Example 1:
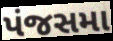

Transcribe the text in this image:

પંજસમા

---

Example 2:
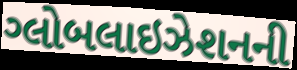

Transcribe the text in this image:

ગ્લોબલાઇઝેશનની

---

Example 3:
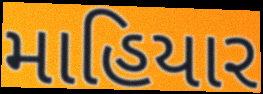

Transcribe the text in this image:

માહિયાર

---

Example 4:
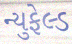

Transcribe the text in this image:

ન્યુફેલ્ડ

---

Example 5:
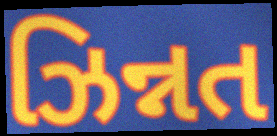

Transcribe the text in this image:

ઝિન્નત